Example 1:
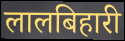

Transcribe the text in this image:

लालबिहारी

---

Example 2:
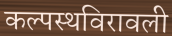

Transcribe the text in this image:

कल्पस्थविरावली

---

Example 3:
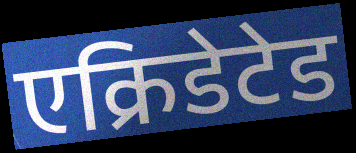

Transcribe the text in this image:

एक्रिडेटेड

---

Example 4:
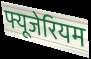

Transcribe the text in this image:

फ्यूजेरियम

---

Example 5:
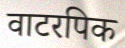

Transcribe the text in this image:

वाटरपिक